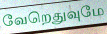
வேறெதுவுமே